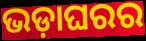
ଭଡ଼ାଘରର